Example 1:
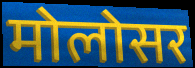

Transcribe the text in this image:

मोलोसर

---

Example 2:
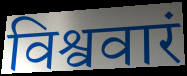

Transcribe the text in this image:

विश्ववारं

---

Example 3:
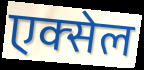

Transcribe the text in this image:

एक्‍सेल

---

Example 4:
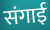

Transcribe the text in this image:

संगाई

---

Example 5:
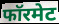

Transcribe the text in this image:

फॉरमेट